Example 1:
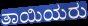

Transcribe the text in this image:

ತಾಯಿಯರು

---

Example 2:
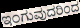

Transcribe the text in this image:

ಇಂಗುವುದರಿಂದ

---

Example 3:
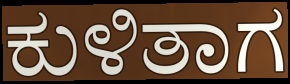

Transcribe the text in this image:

ಕುಳಿತಾಗ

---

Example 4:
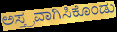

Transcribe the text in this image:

ಅಸ್ತ್ರವಾಗಿಸಿಕೊಂಡು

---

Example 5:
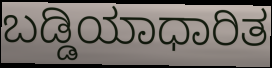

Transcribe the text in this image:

ಬಡ್ಡಿಯಾಧಾರಿತ